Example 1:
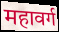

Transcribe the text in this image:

महावर्ग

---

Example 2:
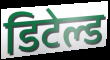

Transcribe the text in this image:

डिटेल्ड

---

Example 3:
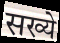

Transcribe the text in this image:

सख्ये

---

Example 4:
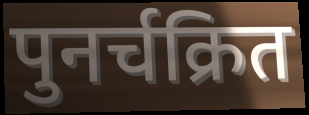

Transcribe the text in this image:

पुनर्चक्रित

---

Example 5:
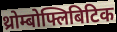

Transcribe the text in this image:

थ्रोम्बोफ्लिबिटिक